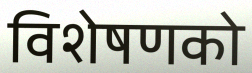
विशेषणको